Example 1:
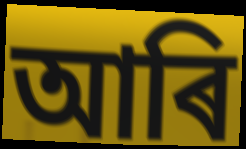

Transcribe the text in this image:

আৰি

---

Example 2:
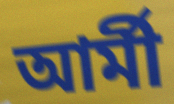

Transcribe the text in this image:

আৰ্মী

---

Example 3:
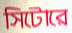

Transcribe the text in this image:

সিটোৱে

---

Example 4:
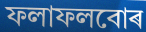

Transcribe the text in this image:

ফলাফলবোৰ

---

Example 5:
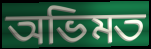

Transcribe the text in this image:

অভিমত